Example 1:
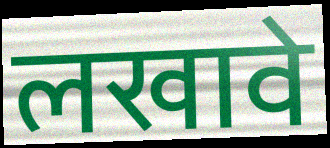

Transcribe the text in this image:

लखावे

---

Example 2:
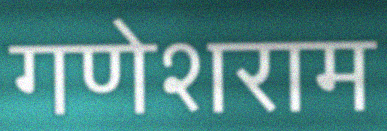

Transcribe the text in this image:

गणेशराम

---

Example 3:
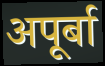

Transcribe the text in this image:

अपूर्बा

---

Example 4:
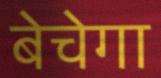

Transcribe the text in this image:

बेचेगा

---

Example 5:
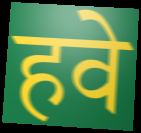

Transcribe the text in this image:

हवे